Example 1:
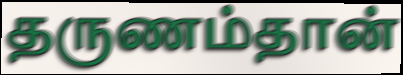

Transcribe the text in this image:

தருணம்தான்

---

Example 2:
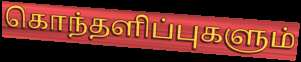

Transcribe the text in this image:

கொந்தளிப்புகளும்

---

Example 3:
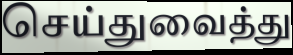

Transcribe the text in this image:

செய்துவைத்து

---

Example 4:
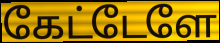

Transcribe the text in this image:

கேட்டேளே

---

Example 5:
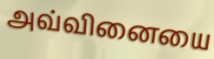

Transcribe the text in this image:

அவ்வினையை